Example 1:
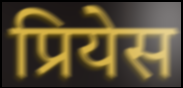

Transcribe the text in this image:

प्रियेस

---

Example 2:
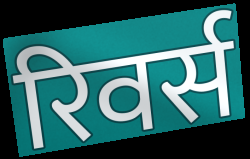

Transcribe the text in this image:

रिवर्स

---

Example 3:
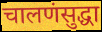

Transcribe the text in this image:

चालणंसुद्धा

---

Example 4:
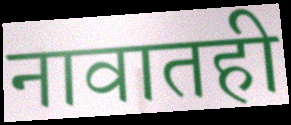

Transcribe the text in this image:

नावातही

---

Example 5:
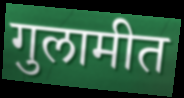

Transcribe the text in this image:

गुलामीत